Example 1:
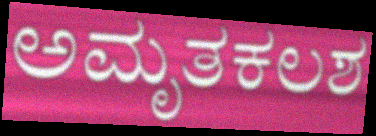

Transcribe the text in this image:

ಅಮೃತಕಲಶ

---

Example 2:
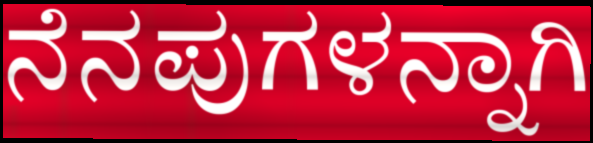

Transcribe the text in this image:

ನೆನಪುಗಳನ್ನಾಗಿ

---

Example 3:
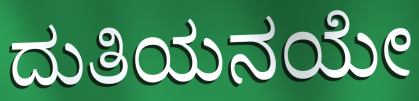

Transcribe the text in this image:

ದುತಿಯನಯೇ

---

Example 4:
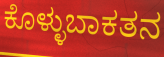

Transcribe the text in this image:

ಕೊಳ್ಳುಬಾಕತನ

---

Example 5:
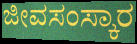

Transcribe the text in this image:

ಜೀವಸಂಸ್ಕಾರ